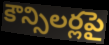
కౌన్సిలర్లపై